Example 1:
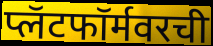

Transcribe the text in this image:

प्लॅटफॉर्मवरची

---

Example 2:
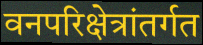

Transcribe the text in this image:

वनपरिक्षेत्रांतर्गत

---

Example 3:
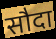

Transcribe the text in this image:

सौदा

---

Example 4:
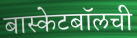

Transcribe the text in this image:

बास्केटबॉलची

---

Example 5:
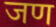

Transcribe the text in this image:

जण